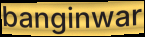
banginwar